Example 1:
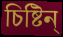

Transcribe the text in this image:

চিষ্টিন্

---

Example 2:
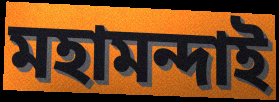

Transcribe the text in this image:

মহামন্দাই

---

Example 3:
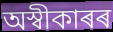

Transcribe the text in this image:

অস্বীকাৰৰ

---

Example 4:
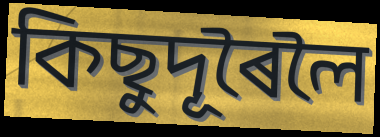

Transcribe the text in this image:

কিছুদূৰৈলৈ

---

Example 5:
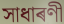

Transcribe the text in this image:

সাধাৰণী